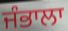
ਜੰਭਾਲਾ